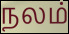
நலம்